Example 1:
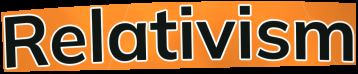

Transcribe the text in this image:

Relativism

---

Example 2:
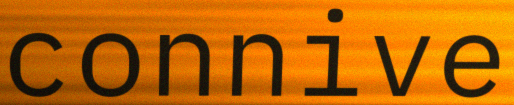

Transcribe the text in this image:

connive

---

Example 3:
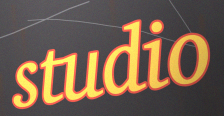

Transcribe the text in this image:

studio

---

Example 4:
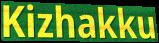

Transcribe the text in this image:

Kizhakku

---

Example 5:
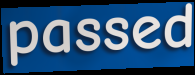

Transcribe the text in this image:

passed